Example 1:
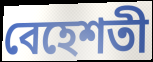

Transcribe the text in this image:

বেহেশতী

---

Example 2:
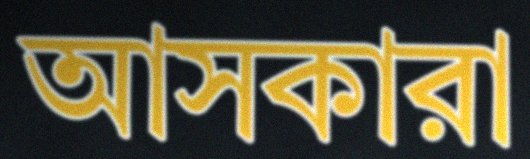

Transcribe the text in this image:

আসকারা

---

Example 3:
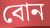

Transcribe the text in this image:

বোন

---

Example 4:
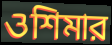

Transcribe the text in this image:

ওশিমার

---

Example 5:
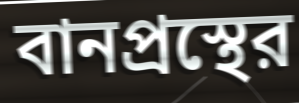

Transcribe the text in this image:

বানপ্রস্থের